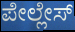
ಪೇಲ್ಲೇಸ್